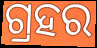
ଗ୍ରହର